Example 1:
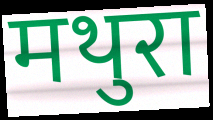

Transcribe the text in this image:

मथुरा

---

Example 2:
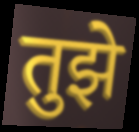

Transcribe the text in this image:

तुझे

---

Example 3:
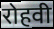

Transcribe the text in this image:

रोहवी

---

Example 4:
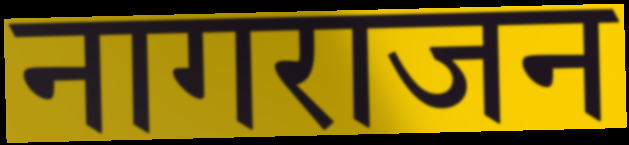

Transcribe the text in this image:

नागराजन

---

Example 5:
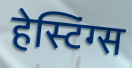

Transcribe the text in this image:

हेस्टिंग्स